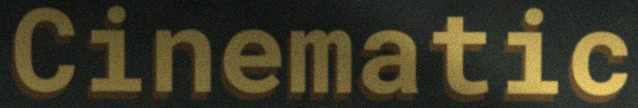
Cinematic